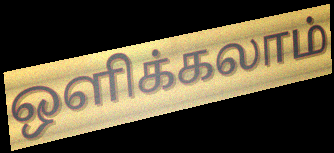
ஒளிக்கலாம்